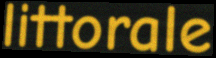
littorale